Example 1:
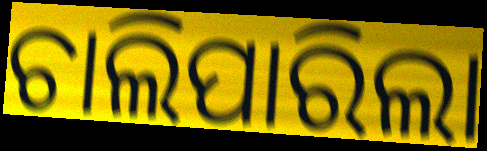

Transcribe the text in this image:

ଚାଲିପାରିଲା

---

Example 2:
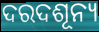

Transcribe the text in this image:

ଦରଦଶୂନ୍ୟ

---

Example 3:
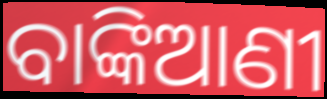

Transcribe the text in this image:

ବାଙ୍କିଆଣୀ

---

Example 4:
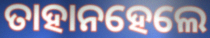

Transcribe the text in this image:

ତାହାନହେଲେ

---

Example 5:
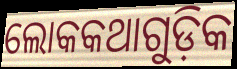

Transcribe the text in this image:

ଲୋକକଥାଗୁଡ଼ିକ